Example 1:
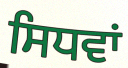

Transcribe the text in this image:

ਸਿਧਵਾਂ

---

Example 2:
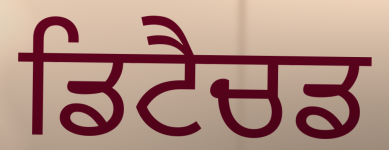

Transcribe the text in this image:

ਡਿਟੈਚਡ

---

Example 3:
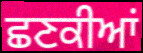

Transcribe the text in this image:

ਛਣਕੀਆਂ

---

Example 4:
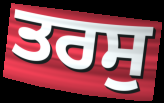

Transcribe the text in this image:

ਤਰਸੁ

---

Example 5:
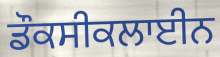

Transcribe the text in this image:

ਡੌਕਸੀਕਲਾਈਨ